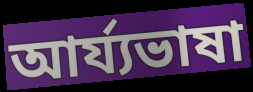
আর্য্যভাষা